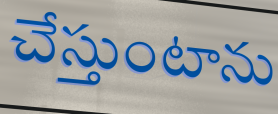
చేస్తుంటాను